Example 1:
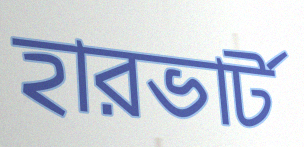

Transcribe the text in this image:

হারভার্ট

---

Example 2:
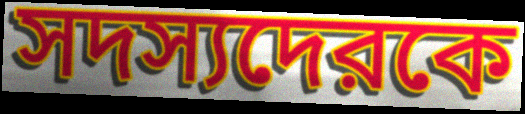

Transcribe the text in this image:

সদস্যদেরকে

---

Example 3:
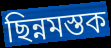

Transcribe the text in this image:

ছিন্নমস্তক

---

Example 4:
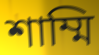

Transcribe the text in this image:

শাম্মি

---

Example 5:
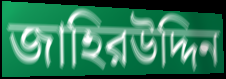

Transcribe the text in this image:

জাহিরউদ্দিন